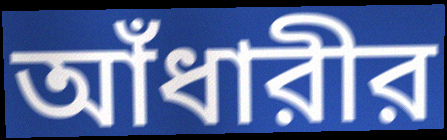
আঁধারীর